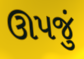
ઊપજું